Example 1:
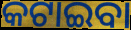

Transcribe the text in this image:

କଟାଇବା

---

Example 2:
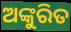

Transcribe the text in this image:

ଅଙ୍କୁରିତ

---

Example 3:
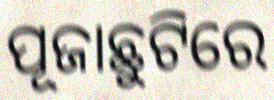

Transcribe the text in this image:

ପୂଜାଛୁଟିରେ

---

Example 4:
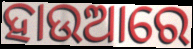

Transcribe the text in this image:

ହାଉଆରେ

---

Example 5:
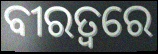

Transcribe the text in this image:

ବୀରତ୍ୱରେ